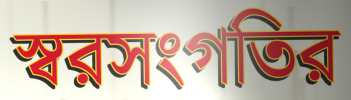
স্বরসংগতির